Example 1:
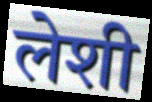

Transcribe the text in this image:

लेशी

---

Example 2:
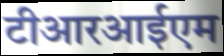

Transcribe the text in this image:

टीआरआईएम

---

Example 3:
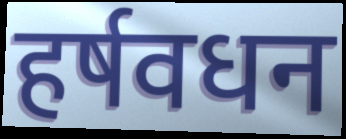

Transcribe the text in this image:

हर्षवधन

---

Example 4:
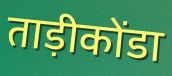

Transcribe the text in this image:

ताड़ीकोंडा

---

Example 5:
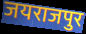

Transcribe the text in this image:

जयराजपुर